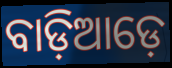
ବାଡ଼ିଆଡ଼େ